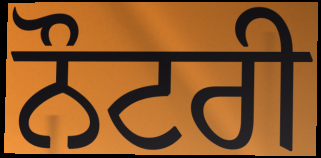
ਨੌਟਰੀ